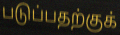
படுப்பதற்குக்